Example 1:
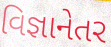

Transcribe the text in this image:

વિજ્ઞાનેતર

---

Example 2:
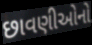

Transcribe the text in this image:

છાવણીઓનો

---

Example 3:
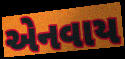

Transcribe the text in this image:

એનવાય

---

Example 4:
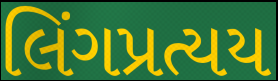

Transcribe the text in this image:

લિંગપ્રત્યય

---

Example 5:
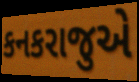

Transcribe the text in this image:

કનકરાજુએ